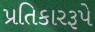
પ્રતિકારરૂપે